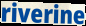
riverine